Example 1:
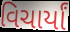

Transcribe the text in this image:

વિચાર્યાં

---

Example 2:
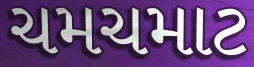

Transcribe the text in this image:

ચમચમાટ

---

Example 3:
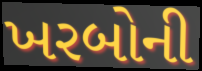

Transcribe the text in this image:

ખરબોની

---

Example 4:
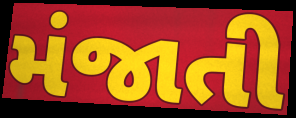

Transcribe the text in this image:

મંજાતી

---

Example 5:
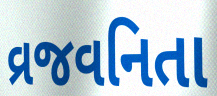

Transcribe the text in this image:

વ્રજવનિતા